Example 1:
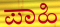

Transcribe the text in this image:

ಪಾಹಿ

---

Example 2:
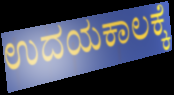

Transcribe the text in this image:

ಉದಯಕಾಲಕ್ಕೆ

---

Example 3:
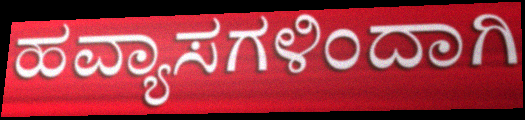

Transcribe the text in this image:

ಹವ್ಯಾಸಗಳಿಂದಾಗಿ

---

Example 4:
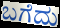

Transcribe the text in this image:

ಬಗೆದು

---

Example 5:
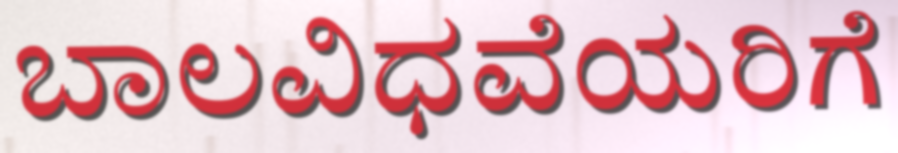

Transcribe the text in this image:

ಬಾಲವಿಧವೆಯರಿಗೆ